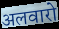
अलवारो